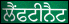
ਲੈਂਫਟੀਨੈਟ